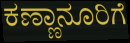
ಕಣ್ಣಾನೂರಿಗೆ